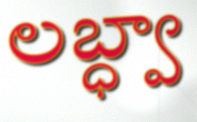
లబ్ధ్వా